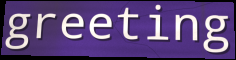
greeting